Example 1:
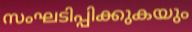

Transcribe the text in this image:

സംഘടിപ്പിക്കുകയും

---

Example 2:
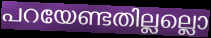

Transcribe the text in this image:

പറയേണ്ടതില്ലല്ലൊ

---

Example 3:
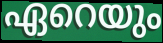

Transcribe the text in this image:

ഏറെയും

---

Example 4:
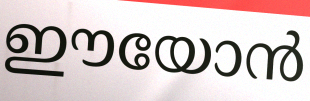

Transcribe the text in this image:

ഈയോൻ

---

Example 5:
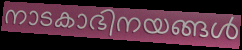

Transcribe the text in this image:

നാടകാഭിനയങ്ങൾ